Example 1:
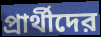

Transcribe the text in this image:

প্রার্থীদের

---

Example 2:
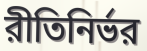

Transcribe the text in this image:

রীতিনির্ভর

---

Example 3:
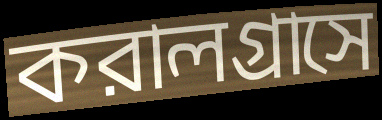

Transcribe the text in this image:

করালগ্রাসে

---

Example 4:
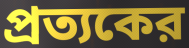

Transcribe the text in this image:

প্রত্যকের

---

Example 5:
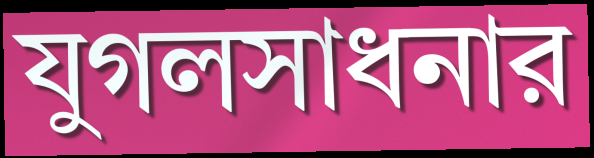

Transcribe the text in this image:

যুগলসাধনার